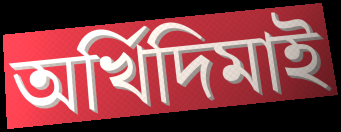
অৰ্খিদিমাই